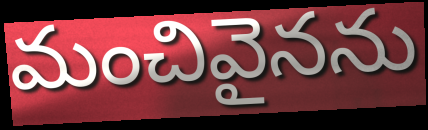
మంచివైనను